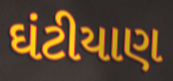
ઘંટીયાણ